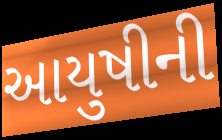
આયુષીની